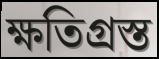
ক্ষতিগ্রস্ত